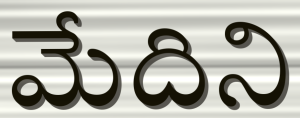
మేదిని